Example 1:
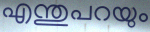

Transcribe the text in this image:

എന്തുപറയും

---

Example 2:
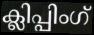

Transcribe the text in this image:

ക്ലിപ്പിംഗ്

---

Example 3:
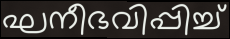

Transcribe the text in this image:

ഘനീഭവിപ്പിച്ച്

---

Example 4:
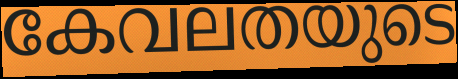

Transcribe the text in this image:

കേവലതയുടെ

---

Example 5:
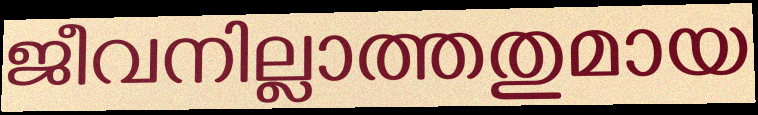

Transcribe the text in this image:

ജീവനില്ലാത്തതുമായ